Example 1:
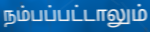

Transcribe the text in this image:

நம்பப்பட்டாலும்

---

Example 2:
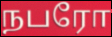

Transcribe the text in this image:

நபரோ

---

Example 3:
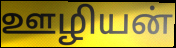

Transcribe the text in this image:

ஊழியன்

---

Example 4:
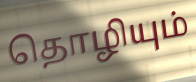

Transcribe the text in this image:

தொழியும்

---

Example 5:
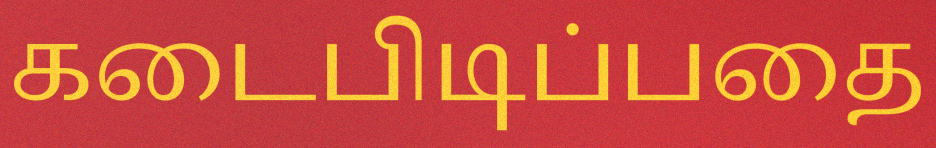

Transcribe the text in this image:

கடைபிடிப்பதை